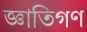
জ্ঞাতিগণ